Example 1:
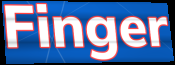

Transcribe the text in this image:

Finger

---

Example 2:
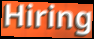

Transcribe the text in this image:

Hiring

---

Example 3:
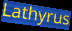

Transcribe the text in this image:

Lathyrus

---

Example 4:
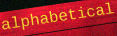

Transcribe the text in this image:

alphabetical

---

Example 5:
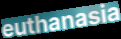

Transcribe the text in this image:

euthanasia